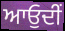
ਆਓੁਦੀਂ